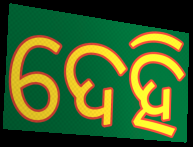
ଦେହି